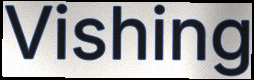
Vishing